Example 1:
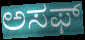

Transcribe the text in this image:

ಅಸಫ್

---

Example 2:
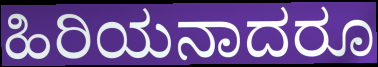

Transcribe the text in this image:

ಹಿರಿಯನಾದರೂ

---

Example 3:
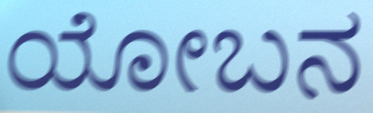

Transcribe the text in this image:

ಯೋಬನ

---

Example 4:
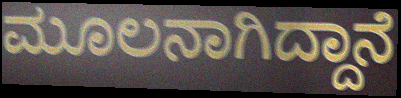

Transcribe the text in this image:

ಮೂಲನಾಗಿದ್ದಾನೆ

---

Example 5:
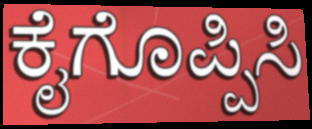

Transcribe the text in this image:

ಕೈಗೊಪ್ಪಿಸಿ